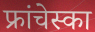
फ्रांचेस्का